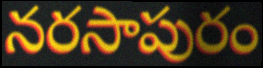
నరసాపురం